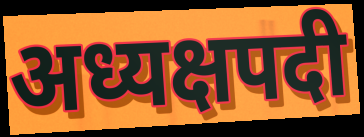
अध्यक्षपदी